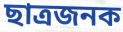
ছাত্ৰজনক